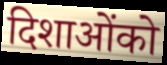
दिशाओंको